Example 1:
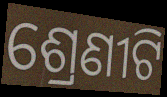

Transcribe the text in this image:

ଶ୍ରେଣୀଟି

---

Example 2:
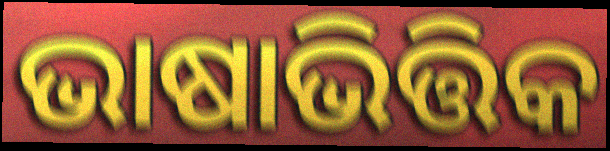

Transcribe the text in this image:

ଭାଷାଭିତ୍ତିକ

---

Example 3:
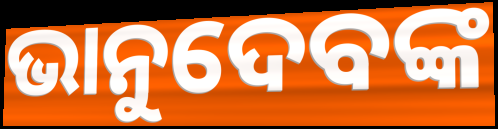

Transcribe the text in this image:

ଭାନୁଦେବଙ୍କ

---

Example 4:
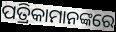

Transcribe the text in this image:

ପତ୍ରିକାମାନଙ୍କରେ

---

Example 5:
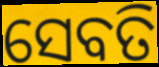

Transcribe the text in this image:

ସେବତି